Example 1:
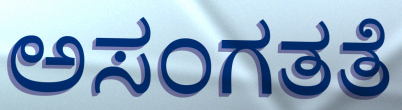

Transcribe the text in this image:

ಅಸಂಗತತೆ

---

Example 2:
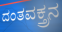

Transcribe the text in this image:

ದಂತವಕ್ತ್ರನ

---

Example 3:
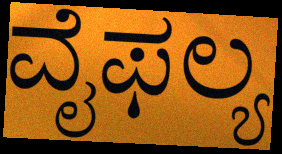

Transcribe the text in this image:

ವೈಫಲ್ಯ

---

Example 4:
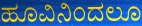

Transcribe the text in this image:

ಹೂವಿನಿಂದಲೂ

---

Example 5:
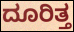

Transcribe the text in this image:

ದೂರಿತ್ತ